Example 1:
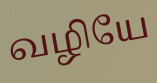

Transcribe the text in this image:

வழியே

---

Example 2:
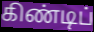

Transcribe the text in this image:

கிண்டிப்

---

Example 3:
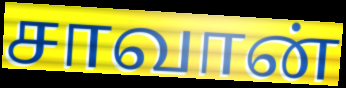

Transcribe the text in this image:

சாவான்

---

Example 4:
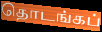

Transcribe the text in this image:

தொடங்கப்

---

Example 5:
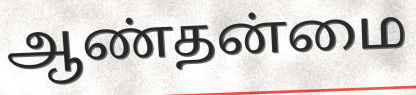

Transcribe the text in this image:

ஆண்தன்மை